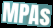
MPAs